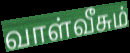
வாள்வீசும்